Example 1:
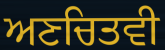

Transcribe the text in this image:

ਅਣਚਿਤਵੀ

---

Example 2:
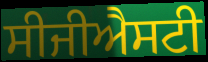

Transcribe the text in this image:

ਸੀਜੀਐਸਟੀ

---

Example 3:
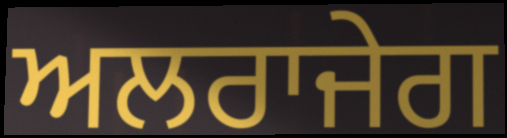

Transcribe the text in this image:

ਅਲਰਾਜੇਗ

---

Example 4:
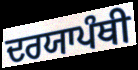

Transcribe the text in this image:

ਦਰਯਾਪੰਥੀ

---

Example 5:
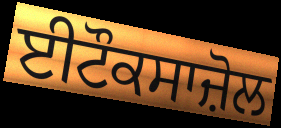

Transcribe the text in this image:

ਈਟੌਕਸਾਜ਼ੋਲ